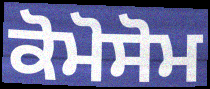
ਕੋਮੋਸੋਮ